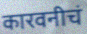
कारवनीचं